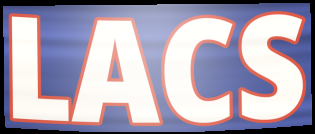
LACS